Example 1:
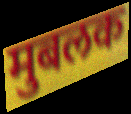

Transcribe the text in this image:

मुबलक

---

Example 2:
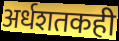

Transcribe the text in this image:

अर्धशतकही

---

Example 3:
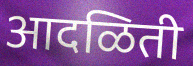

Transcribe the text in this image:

आदळिती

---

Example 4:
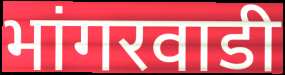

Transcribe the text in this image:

भांगरवाडी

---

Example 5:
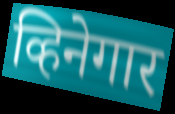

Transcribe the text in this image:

व्हिनेगार